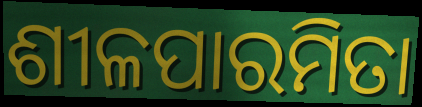
ଶୀଳପାରମିତା